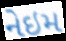
નેઇમ